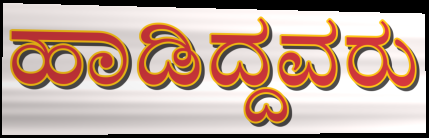
ಹಾಡಿದ್ದವರು